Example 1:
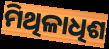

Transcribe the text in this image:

ମିଥିଳାଧିଶ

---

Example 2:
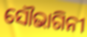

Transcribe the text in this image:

ସୌଭାଗିନୀ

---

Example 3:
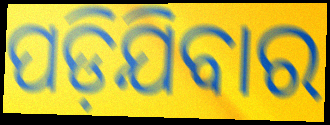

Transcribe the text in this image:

ପଡ଼ିଯିବାର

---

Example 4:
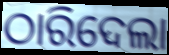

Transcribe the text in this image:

ଠାରିଦେଲା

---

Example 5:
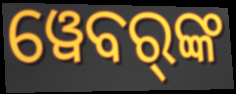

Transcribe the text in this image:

ୱେବର୍‌ଙ୍କ